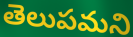
తెలుపమని